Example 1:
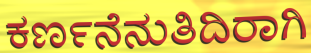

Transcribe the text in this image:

ಕರ್ಣನೆನುತಿದಿರಾಗಿ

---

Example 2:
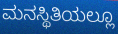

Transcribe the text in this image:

ಮನಸ್ಥಿತಿಯಲ್ಲೂ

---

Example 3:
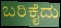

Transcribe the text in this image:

ಬರಿಕೈದು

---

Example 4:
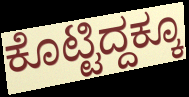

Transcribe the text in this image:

ಕೊಟ್ಟಿದ್ದಕ್ಕೂ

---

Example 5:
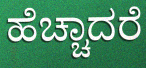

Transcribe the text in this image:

ಹೆಚ್ಚಾದರೆ